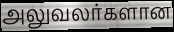
அலுவலர்களான